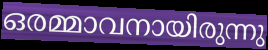
ഒരമ്മാവനായിരുന്നു